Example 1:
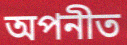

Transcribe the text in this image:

অপনীত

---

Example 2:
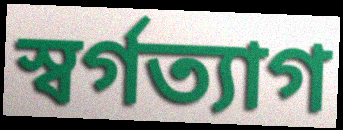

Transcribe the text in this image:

স্বর্গত্যাগ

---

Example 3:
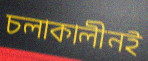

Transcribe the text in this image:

চলাকালীনই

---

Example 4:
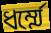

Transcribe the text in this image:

ধর্ম্মে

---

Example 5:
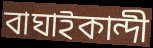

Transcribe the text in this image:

বাঘাইকান্দী